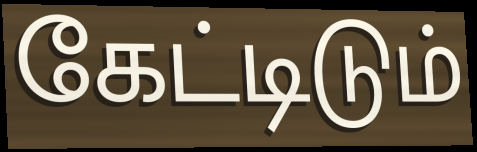
கேட்டிடும்